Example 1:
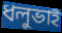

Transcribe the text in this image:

ধলুভাই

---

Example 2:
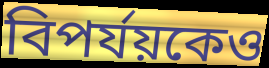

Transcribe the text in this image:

বিপর্যয়কেও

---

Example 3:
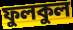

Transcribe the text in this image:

ফুলকুল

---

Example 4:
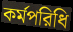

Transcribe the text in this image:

কর্মপরিধি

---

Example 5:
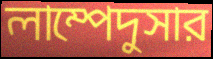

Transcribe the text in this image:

লাম্পেদুসার